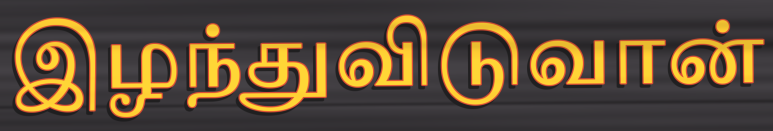
இழந்துவிடுவான்